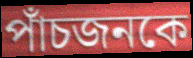
পাঁচজনকে